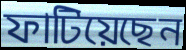
ফাটিয়েছেন